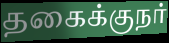
தகைக்குநர்